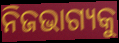
ନିଜଭାଗ୍ୟକୁ